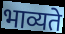
भाव्यते